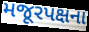
મજૂરપક્ષના